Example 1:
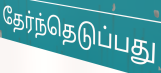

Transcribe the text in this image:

தேர்ந்தெடுப்பது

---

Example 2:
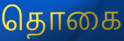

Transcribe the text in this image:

தொகை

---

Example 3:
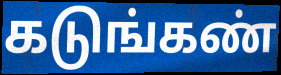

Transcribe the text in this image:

கடுங்கண்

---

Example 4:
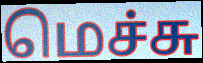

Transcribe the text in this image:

மெச்சு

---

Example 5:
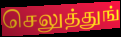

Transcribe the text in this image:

செலுத்துங்